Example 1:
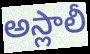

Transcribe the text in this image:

అస్లాలీ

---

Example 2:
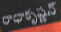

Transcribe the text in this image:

రాధాకృష్ణన్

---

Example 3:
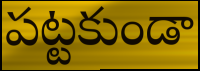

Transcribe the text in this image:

పట్టకుండా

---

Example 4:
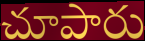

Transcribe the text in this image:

చూపారు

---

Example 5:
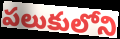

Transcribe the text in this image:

పలుకులోని